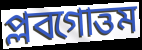
প্লবগোত্তম